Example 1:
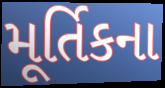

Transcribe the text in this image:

મૂર્તિકના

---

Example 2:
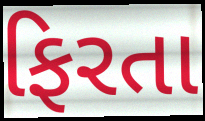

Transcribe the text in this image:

ફિરતા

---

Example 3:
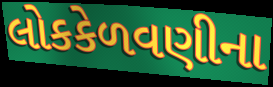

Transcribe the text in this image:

લોકકેળવણીના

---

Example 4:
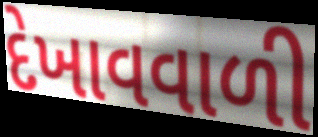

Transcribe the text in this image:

દેખાવવાળી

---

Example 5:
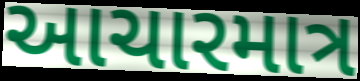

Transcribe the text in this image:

આચારમાત્ર